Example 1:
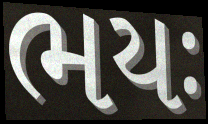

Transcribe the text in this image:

ભયઃ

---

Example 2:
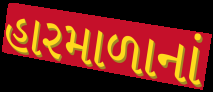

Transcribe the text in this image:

હારમાળાનાં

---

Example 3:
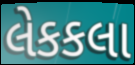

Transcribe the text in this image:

લેકકલા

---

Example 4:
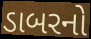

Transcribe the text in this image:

ડાબરનો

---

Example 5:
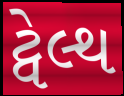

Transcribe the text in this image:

ટ્વેલ્થ